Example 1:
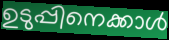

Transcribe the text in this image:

ഉടുപ്പിനെക്കാൾ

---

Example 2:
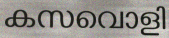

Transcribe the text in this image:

കസവൊളി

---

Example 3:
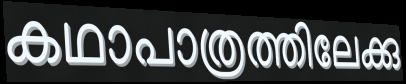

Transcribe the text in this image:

കഥാപാത്രത്തിലേക്കു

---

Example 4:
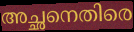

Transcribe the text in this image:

അച്ഛനെതിരെ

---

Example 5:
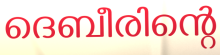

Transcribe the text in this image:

ദെബീരിന്റെ